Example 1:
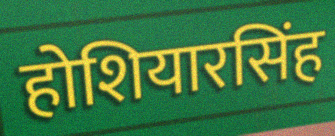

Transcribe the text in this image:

होशियारसिंह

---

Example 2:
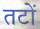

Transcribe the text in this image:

तटों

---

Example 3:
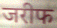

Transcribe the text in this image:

जरीफ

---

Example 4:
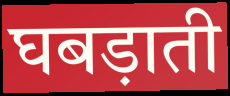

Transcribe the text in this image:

घबड़ाती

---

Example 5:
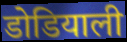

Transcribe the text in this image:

डोडियाली